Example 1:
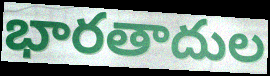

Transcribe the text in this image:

భారతాదుల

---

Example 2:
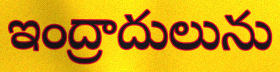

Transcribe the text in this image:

ఇంద్రాదులును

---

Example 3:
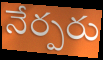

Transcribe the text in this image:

నేర్పరు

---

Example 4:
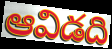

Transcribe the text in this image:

ఆవిడది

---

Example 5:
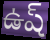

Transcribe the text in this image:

ఉష్